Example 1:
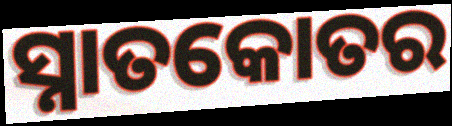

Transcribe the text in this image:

ସ୍ନାତକୋତର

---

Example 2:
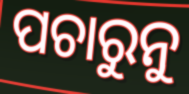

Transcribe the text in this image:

ପଚାରୁନୁ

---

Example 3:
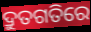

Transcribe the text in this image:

ଦ୍ରୁତଗତିରେ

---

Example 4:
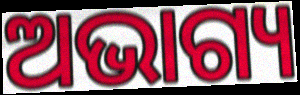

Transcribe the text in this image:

ଅଭାଗ୍ୟ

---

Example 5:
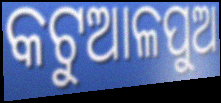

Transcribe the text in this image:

କଟୁଆଳପୁଅ